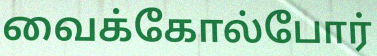
வைக்கோல்போர்